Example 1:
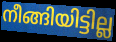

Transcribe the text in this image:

നീങ്ങിയിട്ടില്ല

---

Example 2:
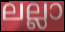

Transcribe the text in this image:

ലല്ലാ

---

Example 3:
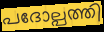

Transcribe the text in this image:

പദോല്പത്തി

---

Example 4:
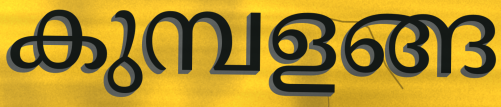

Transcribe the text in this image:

കുമ്പളങ്ങ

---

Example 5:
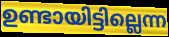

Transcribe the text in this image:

ഉണ്ടായിട്ടില്ലെന്ന